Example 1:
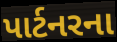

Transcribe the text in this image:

પાર્ટનરના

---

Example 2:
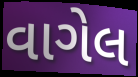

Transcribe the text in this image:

વાગેલ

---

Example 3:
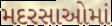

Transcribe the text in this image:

મદરસાઓમાં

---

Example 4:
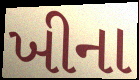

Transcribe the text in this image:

ખીના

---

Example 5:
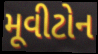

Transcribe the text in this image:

મૂવીટોન